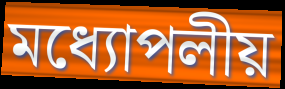
মধ্যোপলীয়